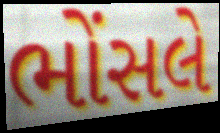
ભોંસલે